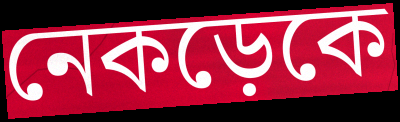
নেকড়েকে